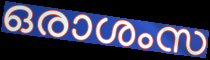
ഒരാശംസ